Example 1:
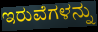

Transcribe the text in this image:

ಇರುವೆಗಳನ್ನು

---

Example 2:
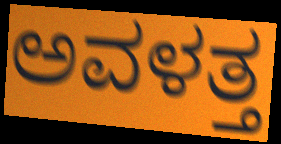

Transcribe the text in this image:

ಅವಳತ್ತ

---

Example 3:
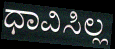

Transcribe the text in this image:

ಧಾವಿಸಿಲ್ಲ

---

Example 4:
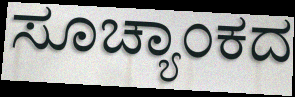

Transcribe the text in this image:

ಸೂಚ್ಯಾಂಕದ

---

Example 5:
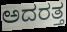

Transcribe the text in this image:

ಅದರತ್ತ